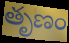
తృణం